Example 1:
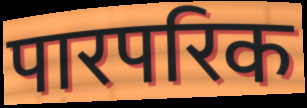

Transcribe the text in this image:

पारपरिक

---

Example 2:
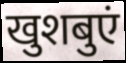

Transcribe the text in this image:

खुशबुएं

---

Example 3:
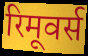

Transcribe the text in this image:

रिमूवर्स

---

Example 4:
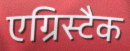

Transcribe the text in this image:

एग्रिस्टैक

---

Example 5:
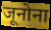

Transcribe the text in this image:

जूनोना